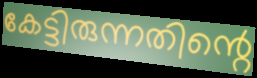
കേട്ടിരുന്നതിന്റെ